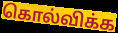
கொல்விக்க